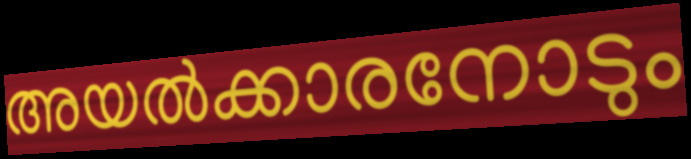
അയൽക്കാരനോടും